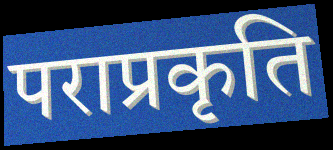
पराप्रकृति